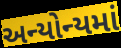
અન્યોન્યમાં